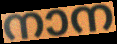
നാന